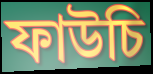
ফাউচি